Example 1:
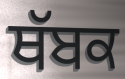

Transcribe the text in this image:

ਥੱਬਕ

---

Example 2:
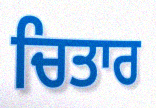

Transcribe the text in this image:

ਚਿਤਾਰ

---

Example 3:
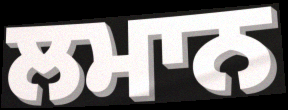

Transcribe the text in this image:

ਲਮਾਨ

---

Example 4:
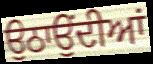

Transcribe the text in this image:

ਉਠਾਉਂਦੀਆਂ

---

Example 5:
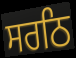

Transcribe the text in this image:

ਸਰਠਿ